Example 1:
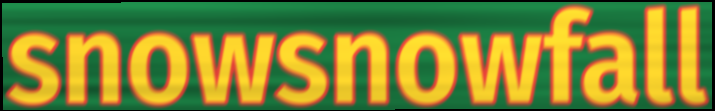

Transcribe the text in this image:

snowsnowfall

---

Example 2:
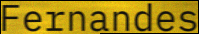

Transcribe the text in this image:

Fernandes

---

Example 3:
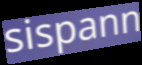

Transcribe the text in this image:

sispann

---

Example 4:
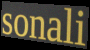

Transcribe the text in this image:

sonali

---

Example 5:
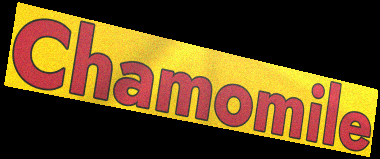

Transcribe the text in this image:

Chamomile